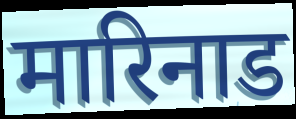
मारिनाड